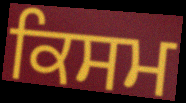
ਕਿਸਮ